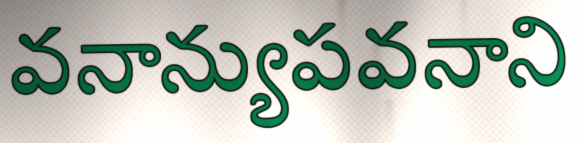
వనాన్యుపవనాని